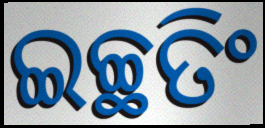
ଇଚ୍ଛତିଂ